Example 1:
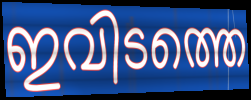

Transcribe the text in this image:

ഇവിടത്തെ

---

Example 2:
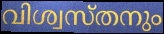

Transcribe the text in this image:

വിശ്വസ്തനും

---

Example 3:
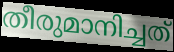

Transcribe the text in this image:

തീരുമാനിച്ചത്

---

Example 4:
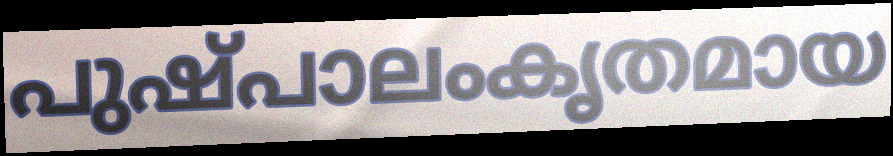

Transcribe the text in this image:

പുഷ്പാലംകൃതമായ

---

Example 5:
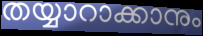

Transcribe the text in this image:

തയ്യാറാക്കാനും